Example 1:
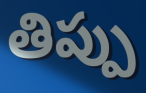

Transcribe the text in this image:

తిప్పు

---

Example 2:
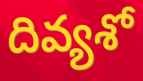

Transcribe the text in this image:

దివ్యశో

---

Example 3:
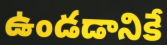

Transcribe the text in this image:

ఉండడానికే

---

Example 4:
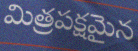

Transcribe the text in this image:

మిత్రపక్షమైన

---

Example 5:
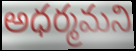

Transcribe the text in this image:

అధర్మమని